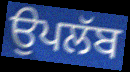
ਉਪਲੱਬ